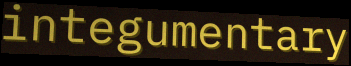
integumentary